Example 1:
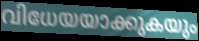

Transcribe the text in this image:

വിധേയയാക്കുകയും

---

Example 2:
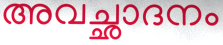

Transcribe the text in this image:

അവച്ഛാദനം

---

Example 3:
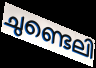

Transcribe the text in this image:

ചുണ്ടെലി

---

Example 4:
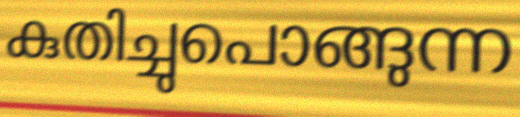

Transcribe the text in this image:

കുതിച്ചുപൊങ്ങുന്ന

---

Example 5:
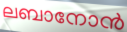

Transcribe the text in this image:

ലബാനോൻ